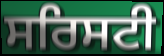
ਸਰਿਸਟੀ